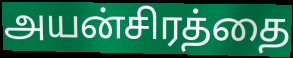
அயன்சிரத்தை